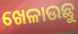
ଖେଳାଉଛୁ